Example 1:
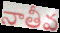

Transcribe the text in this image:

నాతీవ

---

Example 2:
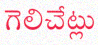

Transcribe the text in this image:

గెలిచేట్లు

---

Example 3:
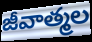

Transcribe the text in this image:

జీవాత్మల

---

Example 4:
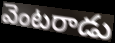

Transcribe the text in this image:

వెంటరాడు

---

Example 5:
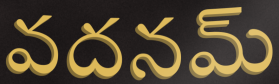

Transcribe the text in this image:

వదనమ్